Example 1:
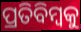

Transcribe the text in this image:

ପ୍ରତିବିମ୍ୱକୁ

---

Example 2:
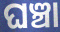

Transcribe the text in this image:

ଘଞ୍ଚା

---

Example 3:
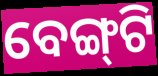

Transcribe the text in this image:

ବେଙ୍ଗ୍‌ଟି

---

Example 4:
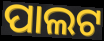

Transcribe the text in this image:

ପାଲଟ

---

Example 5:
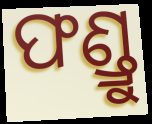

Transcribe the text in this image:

ଫଣ୍ଡ୍ରୁ